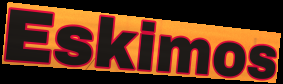
Eskimos